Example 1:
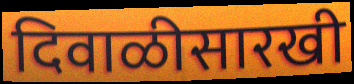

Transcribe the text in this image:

दिवाळीसारखी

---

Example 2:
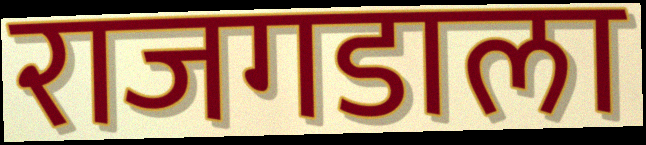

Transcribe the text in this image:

राजगडाला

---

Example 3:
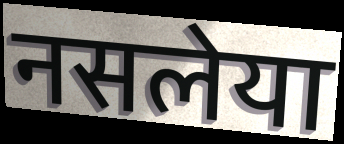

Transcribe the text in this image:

नसलेया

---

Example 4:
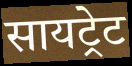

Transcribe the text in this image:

सायट्रेट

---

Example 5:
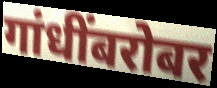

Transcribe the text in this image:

गांधींबरोबर